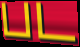
பட